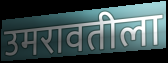
उमरावतीला